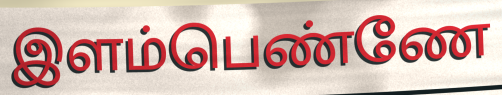
இளம்பெண்ணே